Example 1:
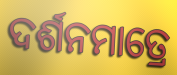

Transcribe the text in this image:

ଦର୍ଶନମାତ୍ରେ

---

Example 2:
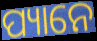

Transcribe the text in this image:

ପ୍ୟାନେ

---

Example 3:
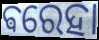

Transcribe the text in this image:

ଵରେହା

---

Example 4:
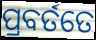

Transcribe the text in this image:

ପ୍ରବର୍ତତେ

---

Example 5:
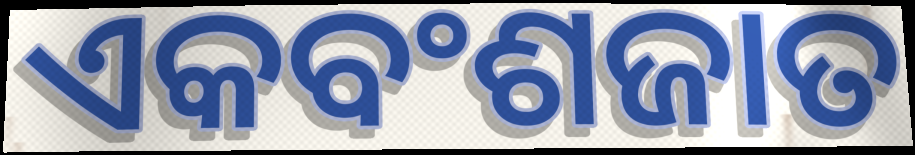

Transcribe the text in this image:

ଏକବଂଶଜାତ